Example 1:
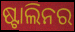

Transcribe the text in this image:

ଷ୍ଟାଲିନର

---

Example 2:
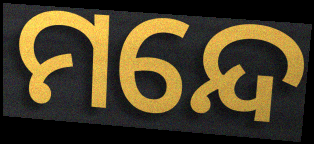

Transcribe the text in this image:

ମନ୍ଦେ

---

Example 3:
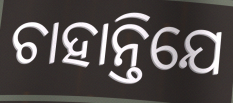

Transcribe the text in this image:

ଚାହାନ୍ତିଯେ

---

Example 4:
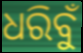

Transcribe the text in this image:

ଧରିବୁଁ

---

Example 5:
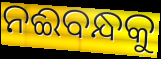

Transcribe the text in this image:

ନଈବନ୍ଧକୁ